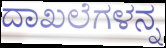
ದಾಖಲೆಗಳನ್ನ